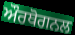
ਔਰਥੋਗਨਲ